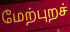
மேற்புறச்